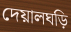
দেয়ালঘড়ি